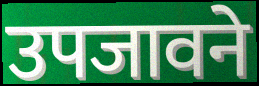
उपजावने